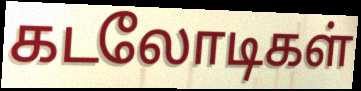
கடலோடிகள்